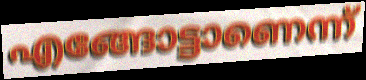
എങ്ങോട്ടാണെന്ന്